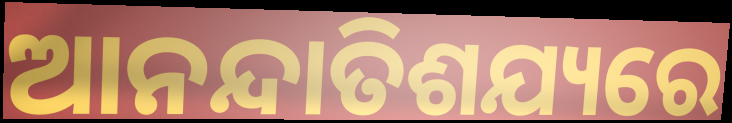
ଆନନ୍ଦାତିଶଯ୍ୟରେ